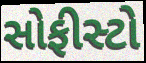
સોફીસ્ટો